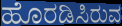
ಹೊರಡಿಸಿರುವ